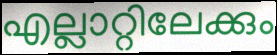
എല്ലാറ്റിലേക്കും